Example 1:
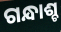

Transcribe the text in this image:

ଗନ୍ଧାଶ୍ଚ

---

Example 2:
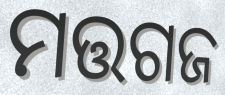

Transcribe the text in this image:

ମତ୍ତଗଜ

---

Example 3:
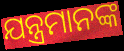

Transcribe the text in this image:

ଯନ୍ତ୍ରମାନଙ୍କ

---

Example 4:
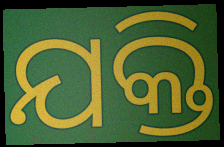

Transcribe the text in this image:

ଯକ୍ତି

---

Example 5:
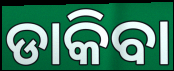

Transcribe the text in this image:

ଡାକିବା